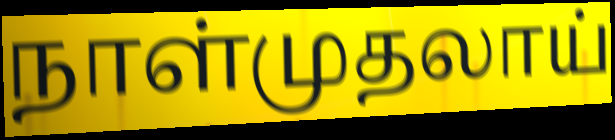
நாள்முதலாய்